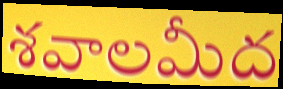
శవాలమీద